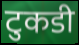
टुकडी